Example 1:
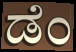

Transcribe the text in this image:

ಡೆಂ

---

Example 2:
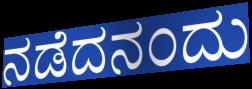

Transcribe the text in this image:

ನಡೆದನಂದು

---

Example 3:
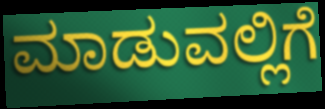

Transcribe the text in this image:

ಮಾಡುವಲ್ಲಿಗೆ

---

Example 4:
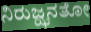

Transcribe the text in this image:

ನಿರುಜ್ಝನತೋ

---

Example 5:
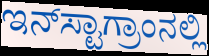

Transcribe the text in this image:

ಇನ್‌ಸ್ಟಾಗ್ರಾಂನಲ್ಲಿ